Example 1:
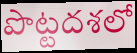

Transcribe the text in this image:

పొట్టదశలో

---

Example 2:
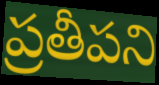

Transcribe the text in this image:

ప్రతీపని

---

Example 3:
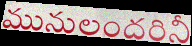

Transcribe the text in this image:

మునులందరినీ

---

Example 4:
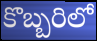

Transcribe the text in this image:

కొబ్బరిలో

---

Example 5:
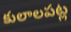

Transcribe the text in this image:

కులాలపట్ల